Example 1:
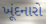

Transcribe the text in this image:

ખૂંદનારો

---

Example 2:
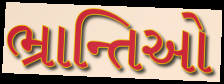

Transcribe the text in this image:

ભ્રાન્તિઓ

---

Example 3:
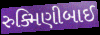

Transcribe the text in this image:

રુક્મિણીબાઈ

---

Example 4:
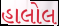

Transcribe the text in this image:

હાલોલ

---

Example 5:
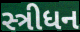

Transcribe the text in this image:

સ્ત્રીધન